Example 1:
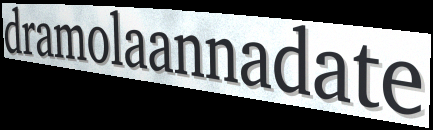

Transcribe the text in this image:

dramolaannadate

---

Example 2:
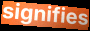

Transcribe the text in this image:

signifies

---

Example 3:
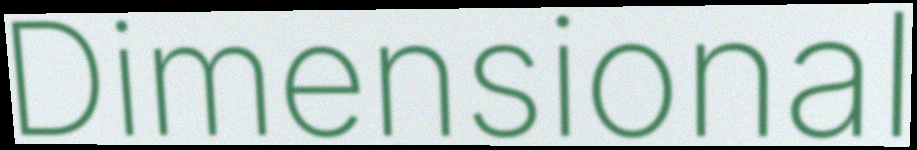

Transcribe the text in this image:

Dimensional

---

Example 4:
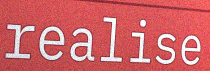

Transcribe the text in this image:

realise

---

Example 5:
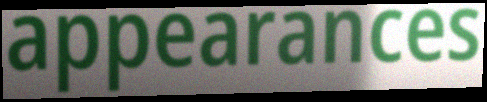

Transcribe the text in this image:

appearances